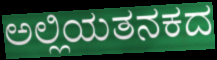
ಅಲ್ಲಿಯತನಕದ